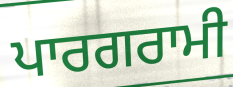
ਪਾਰਗਰਾਮੀ